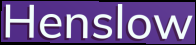
Henslow